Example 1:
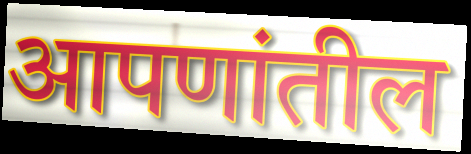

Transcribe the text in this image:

आपणांतील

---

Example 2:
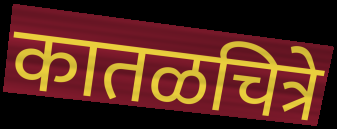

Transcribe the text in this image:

कातळचित्रे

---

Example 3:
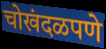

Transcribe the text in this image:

चोखंदळपणे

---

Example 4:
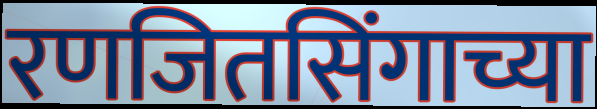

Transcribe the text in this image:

रणजितसिंगाच्या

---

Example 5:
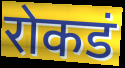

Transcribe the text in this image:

रोकडं